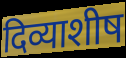
दिव्याशीष